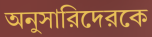
অনুসারিদেরকে